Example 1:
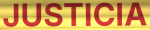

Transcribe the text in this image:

JUSTICIA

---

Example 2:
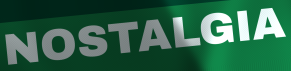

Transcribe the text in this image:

NOSTALGIA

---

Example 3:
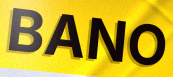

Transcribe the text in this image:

BANO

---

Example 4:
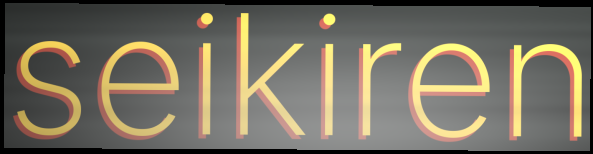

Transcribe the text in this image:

seikiren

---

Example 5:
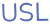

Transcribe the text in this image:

USL